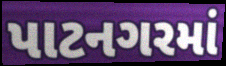
પાટનગરમાં